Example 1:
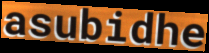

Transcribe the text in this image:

asubidhe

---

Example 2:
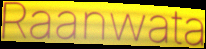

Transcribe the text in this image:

Raanwata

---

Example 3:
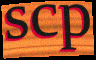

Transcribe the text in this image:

scp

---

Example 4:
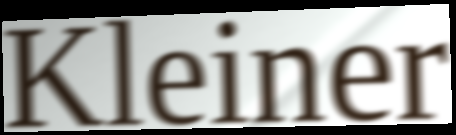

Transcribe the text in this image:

Kleiner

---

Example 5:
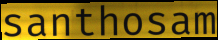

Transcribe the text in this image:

santhosam